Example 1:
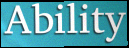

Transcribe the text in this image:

Ability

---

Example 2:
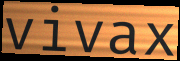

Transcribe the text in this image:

vivax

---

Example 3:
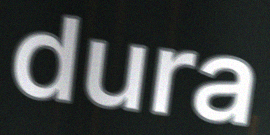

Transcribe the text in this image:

dura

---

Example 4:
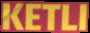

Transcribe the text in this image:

KETLI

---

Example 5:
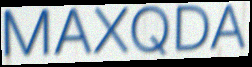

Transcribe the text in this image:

MAXQDA